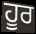
ਹੂਰ